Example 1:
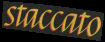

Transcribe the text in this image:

staccato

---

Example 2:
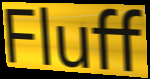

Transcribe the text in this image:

Fluff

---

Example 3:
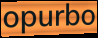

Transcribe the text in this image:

opurbo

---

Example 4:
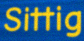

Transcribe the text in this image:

Sittig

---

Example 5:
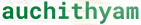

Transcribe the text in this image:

auchithyam